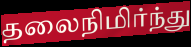
தலைநிமிர்ந்து